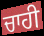
ਚਾਹੀ